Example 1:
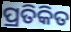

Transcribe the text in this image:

ପ୍ରତିକିତ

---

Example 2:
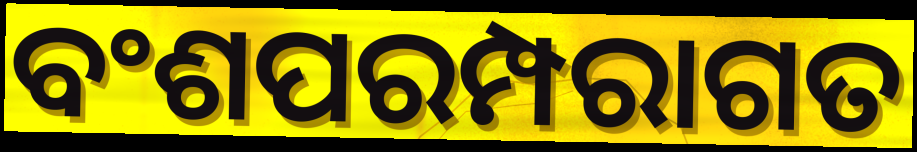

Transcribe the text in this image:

ବଂଶପରମ୍ପରାଗତ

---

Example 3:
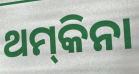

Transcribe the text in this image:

ଥମ୍‍କିନା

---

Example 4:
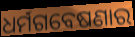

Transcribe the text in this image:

ଧର୍ମଗବେଷଣାର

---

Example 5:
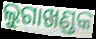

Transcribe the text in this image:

ଲୁଗାଖଣ୍ଡକ